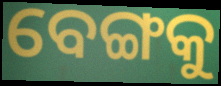
ବେଙ୍ଗକୁ